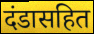
दंडासहित